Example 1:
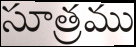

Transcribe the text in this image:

సూత్రము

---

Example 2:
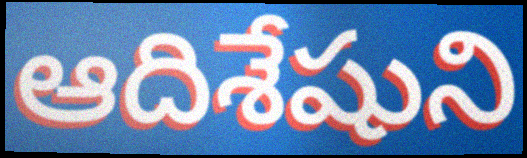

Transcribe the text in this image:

ఆదిశేషుని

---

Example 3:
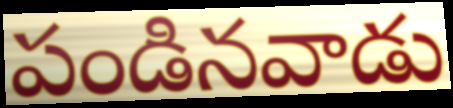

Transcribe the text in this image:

పండినవాడు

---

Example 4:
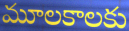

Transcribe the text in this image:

మూలకాలకు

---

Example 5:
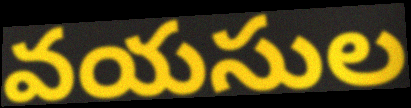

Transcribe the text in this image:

వయసుల